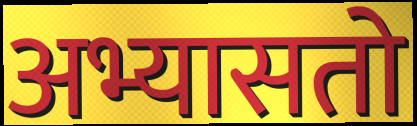
अभ्यासतो